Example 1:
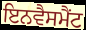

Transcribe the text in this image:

ਇਨਵੈਸਮੈਂਟ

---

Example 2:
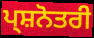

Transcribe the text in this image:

ਪ੍ਸ਼ਨੋਤਰੀ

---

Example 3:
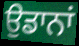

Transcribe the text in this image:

ਉਡਾਨਾਂ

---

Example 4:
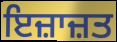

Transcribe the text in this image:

ਇਜ਼ਾਜ਼ਤ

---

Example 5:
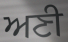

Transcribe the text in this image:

ਅਣੀ